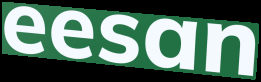
eesan